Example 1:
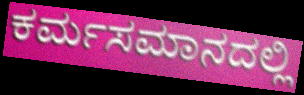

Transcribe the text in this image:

ಕರ್ಮಸಮಾನದಲ್ಲಿ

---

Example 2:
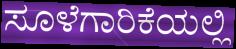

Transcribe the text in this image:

ಸೂಳೆಗಾರಿಕೆಯಲ್ಲಿ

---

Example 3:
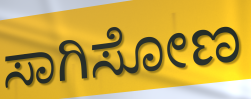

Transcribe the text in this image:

ಸಾಗಿಸೋಣ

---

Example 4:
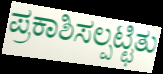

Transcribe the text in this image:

ಪ್ರಕಾಶಿಸಲ್ಪಟ್ಟಿತು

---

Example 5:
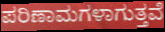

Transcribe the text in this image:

ಪರಿಣಾಮಗಳಾಗುತ್ತವೆ